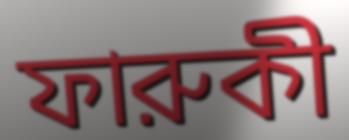
ফারুকী